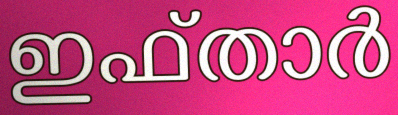
ഇഫ്താർ